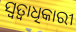
ସ୍ବତ୍ବାଧିକାରୀ